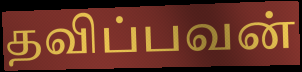
தவிப்பவன்